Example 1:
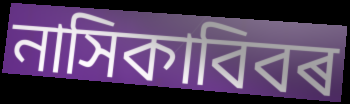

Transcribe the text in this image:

নাসিকাবিবৰ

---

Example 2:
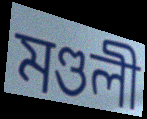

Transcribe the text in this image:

মণ্ডলী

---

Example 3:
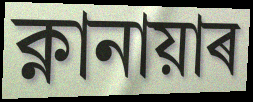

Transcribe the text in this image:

ক্নানায়াৰ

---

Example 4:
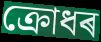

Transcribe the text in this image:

ক্ৰোধৰ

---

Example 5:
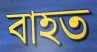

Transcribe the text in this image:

বাহত